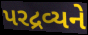
પરદ્રવ્યને